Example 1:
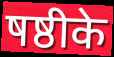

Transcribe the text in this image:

षष्ठीके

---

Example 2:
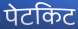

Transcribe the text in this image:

पेटकिट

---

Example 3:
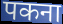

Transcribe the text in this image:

पकना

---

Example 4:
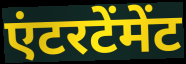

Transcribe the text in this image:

एंटरटेंमेंट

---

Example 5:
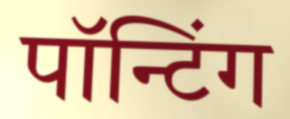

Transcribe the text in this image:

पॉन्टिंग